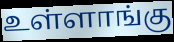
உள்ளாங்கு